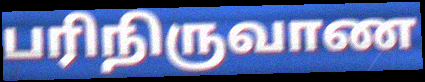
பரிநிருவாண